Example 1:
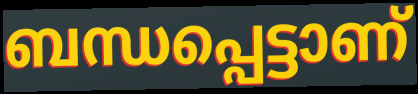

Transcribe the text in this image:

ബന്ധപ്പെട്ടാണ്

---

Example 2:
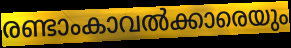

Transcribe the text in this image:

രണ്ടാംകാവൽക്കാരെയും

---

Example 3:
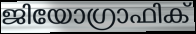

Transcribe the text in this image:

ജിയോഗ്രാഫിക്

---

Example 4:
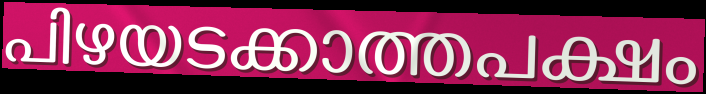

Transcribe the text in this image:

പിഴയടക്കാത്തപക്ഷം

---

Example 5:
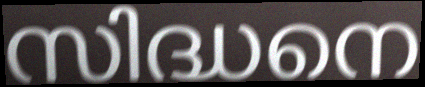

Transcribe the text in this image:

സിദ്ധനെ